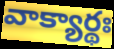
వాక్యార్థః